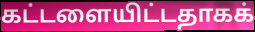
கட்டளையிட்டதாகக்